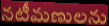
నటీమణులను